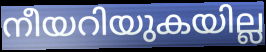
നീയറിയുകയില്ല